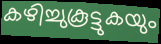
കഴിച്ചുകൂട്ടുകയും